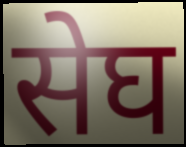
सेघ